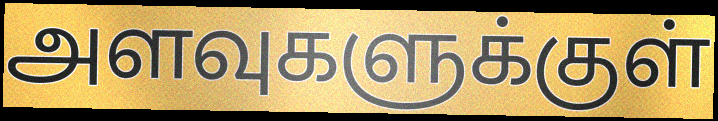
அளவுகளுக்குள்